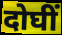
दोघीं